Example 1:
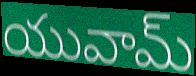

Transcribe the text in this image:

యువామ్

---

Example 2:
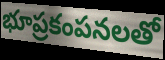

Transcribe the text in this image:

భూప్రకంపనలతో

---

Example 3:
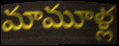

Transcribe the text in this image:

మామూళ్ల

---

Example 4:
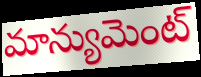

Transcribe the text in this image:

మాన్యుమెంట్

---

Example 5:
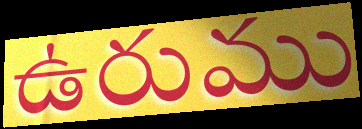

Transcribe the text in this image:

ఉరుము